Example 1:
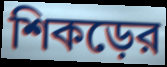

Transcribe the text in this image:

শিকড়ের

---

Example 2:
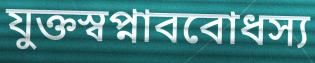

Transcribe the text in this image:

যুক্তস্বপ্নাববোধস্য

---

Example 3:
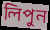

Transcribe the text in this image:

লিপুন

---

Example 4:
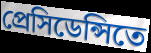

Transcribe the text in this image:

প্রেসিডেন্সিতে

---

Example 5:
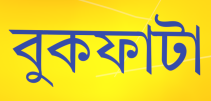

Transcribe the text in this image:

বুকফাটা